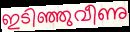
ഇടിഞ്ഞുവീണു